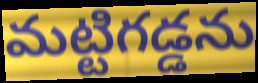
మట్టిగడ్డను